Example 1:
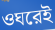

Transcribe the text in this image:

ওঘরেই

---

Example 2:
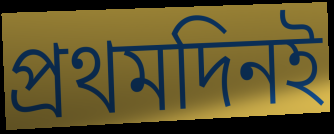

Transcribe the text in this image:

প্রথমদিনই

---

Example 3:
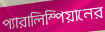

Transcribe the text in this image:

প্যারালিম্পিয়ানের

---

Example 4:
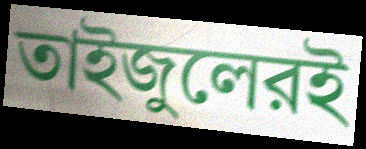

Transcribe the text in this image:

তাইজুলেরই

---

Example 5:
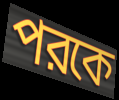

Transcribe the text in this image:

পরকে